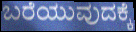
ಬರೆಯುವುದಕ್ಕೆ